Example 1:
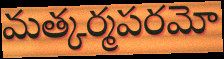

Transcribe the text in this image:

మత్కర్మపరమో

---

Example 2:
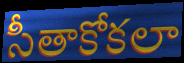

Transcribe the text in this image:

సీతాకోకలా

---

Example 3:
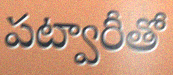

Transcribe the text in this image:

పట్వారీతో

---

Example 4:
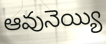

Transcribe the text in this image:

ఆవునెయ్యి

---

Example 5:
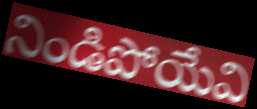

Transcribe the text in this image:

నిండిపోయేవి